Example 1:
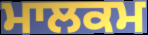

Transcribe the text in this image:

ਮਾਲਕਮ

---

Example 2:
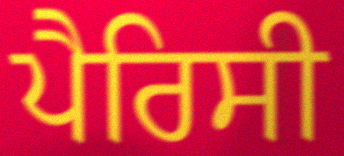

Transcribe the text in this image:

ਪੈਰਿਸੀ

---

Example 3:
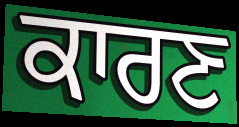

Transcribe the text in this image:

ਕਾਰਣ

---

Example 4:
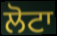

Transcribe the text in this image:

ਲੋਟਾ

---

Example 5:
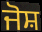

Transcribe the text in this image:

ਜੋਸ਼